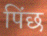
पिंछ